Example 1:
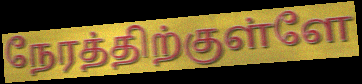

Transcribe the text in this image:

நேரத்திற்குள்ளே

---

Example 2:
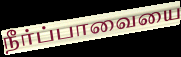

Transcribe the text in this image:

நீர்ப்பாவையை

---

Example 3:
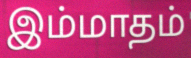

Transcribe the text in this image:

இம்மாதம்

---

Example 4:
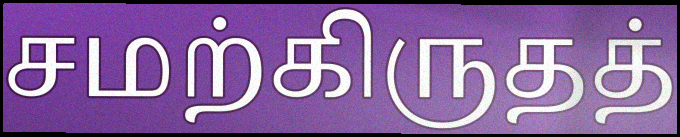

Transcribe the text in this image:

சமற்கிருதத்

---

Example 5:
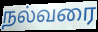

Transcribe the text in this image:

நல்வரை